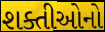
શક્તીઓનો